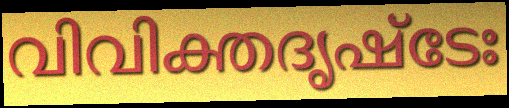
വിവിക്തദൃഷ്ടേഃ